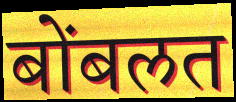
बोंबलत